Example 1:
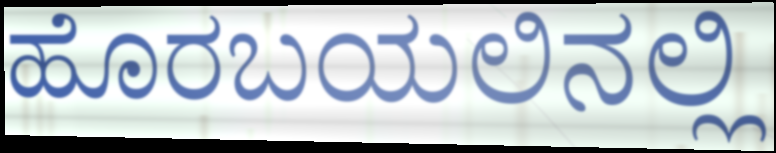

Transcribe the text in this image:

ಹೊರಬಯಲಿನಲ್ಲಿ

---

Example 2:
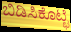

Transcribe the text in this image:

ಬಿಡಿಸಿಕೊಟ್ಟೆ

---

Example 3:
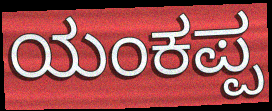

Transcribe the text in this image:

ಯಂಕಪ್ಪ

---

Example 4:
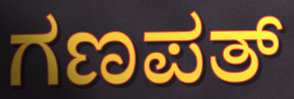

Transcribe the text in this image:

ಗಣಪತ್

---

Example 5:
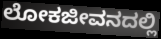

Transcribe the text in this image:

ಲೋಕಜೀವನದಲ್ಲಿ